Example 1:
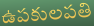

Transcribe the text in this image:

ఉపకులపతి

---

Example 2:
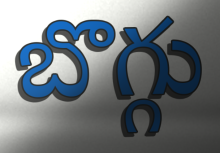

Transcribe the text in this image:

బొగ్గు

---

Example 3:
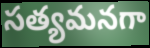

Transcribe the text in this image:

సత్యమనగా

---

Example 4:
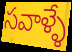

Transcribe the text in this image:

సవాళ్ళే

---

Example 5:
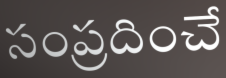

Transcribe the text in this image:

సంప్రదించే